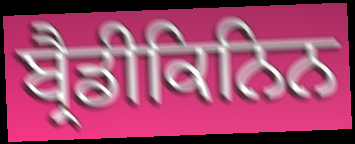
ਬ੍ਰੈਡੀਕਿਨਿਨ